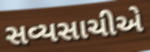
સવ્યસાચીએ